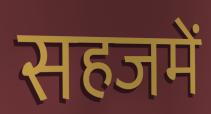
सहजमें